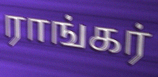
ராங்கர்